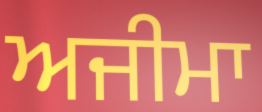
ਅਜੀਮਾ